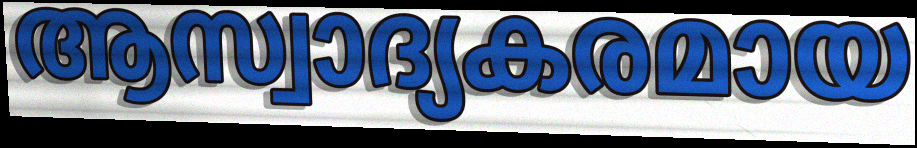
ആസ്വാദ്യകരമായ